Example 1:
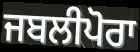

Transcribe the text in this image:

ਜਬਲੀਪੋਰਾ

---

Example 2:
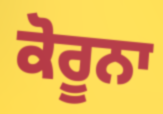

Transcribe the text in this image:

ਕੋਰੂਨਾ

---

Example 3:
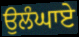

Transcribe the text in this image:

ਉਲੰਘਾਏ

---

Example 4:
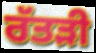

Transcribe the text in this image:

ਰੱਤੜੀ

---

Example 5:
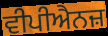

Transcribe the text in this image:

ਵੀਪੀਐਨਜ਼